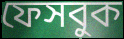
ফেসবুক